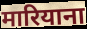
मारियाना